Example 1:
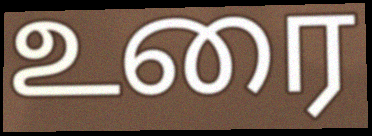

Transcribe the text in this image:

உரை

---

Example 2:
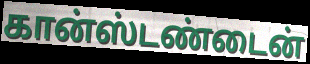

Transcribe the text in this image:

கான்ஸ்டண்டைன்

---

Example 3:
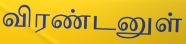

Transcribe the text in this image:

விரண்டனுள்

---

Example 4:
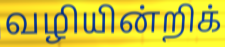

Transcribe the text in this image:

வழியின்றிக்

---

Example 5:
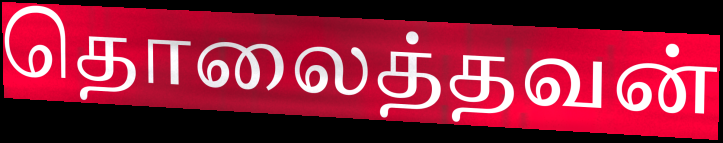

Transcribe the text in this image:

தொலைத்தவன்